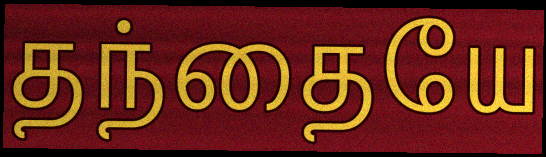
தந்தையே